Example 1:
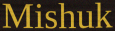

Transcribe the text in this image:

Mishuk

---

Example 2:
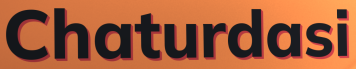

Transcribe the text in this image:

Chaturdasi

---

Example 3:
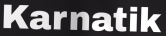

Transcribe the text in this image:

Karnatik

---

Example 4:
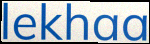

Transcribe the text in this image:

lekhaa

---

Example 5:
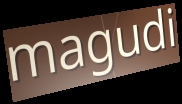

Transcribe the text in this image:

magudi